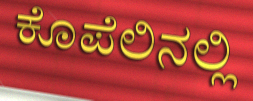
ಕೊಪೆಲಿನಲ್ಲಿ